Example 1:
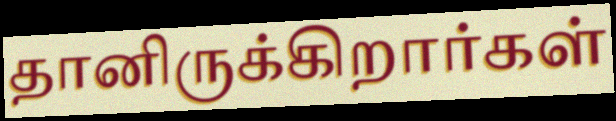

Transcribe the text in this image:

தானிருக்கிறார்கள்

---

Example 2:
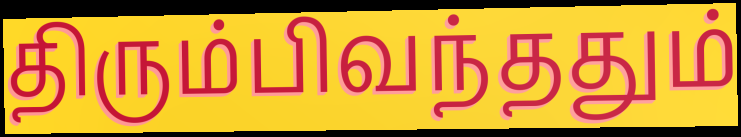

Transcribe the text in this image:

திரும்பிவந்ததும்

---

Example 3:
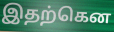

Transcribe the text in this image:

இதற்கென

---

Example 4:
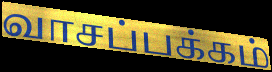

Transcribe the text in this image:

வாசப்பக்கம்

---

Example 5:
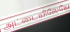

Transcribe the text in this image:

அட்டையிலேயே